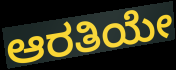
ಆರತಿಯೇ